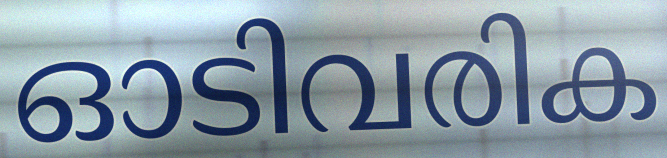
ഓടിവരിക